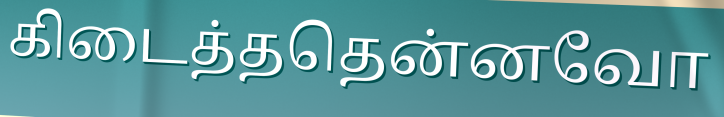
கிடைத்ததென்னவோ